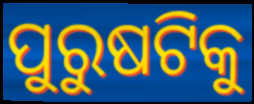
ପୁରୁଷଟିକୁ